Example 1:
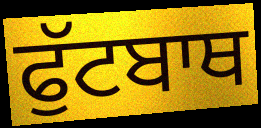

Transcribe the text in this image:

ਫੁੱਟਬਾਥ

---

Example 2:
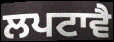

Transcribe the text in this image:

ਲਪਟਾਵੈ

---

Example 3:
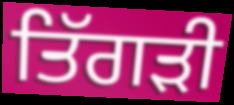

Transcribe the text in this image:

ਤਿੱਗੜੀ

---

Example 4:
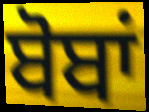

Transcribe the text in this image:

ਬੋਬਾਂ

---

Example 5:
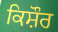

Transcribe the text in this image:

ਕਿਸ਼ੌਰ